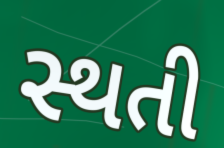
સ્થતી